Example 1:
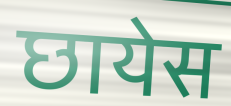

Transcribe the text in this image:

छायेस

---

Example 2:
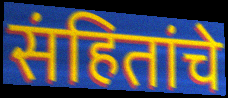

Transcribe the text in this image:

संहितांचे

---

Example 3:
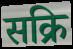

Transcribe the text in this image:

सक्रि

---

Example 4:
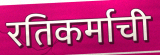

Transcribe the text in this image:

रतिकर्माची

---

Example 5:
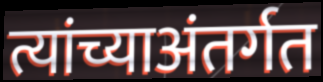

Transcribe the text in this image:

त्यांच्याअंतर्गत